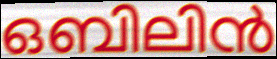
ഒബിലിൻ